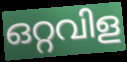
ഒറ്റവിള